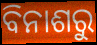
ବିନାଶରୁ